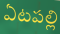
ఏటపల్లి